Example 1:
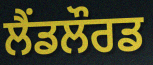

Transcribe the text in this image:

ਲੈਂਡਲੌਰਡ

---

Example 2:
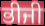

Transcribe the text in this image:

ਭੀਜੀ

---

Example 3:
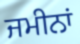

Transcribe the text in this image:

ਜਮੀਨਾਂ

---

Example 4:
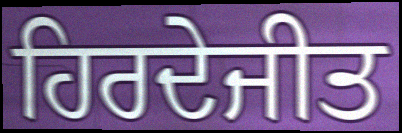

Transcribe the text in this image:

ਹਿਰਦੇਜੀਤ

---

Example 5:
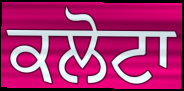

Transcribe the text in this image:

ਕਲੋਟਾ